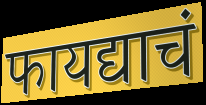
फायद्याचं